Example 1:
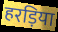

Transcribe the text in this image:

हरड़िया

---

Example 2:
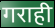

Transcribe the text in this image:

गराही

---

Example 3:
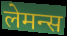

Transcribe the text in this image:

लेमन्स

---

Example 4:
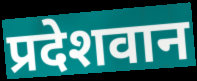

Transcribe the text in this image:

प्रदेशवान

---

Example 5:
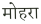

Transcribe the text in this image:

मोहरा